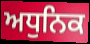
ਅਧੁਨਿਕ